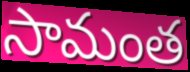
సామంత